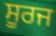
ਸੂਰਜ